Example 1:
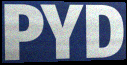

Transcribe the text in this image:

PYD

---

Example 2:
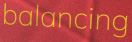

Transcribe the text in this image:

balancing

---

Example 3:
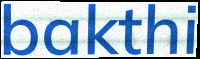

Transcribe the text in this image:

bakthi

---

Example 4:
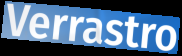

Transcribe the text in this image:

Verrastro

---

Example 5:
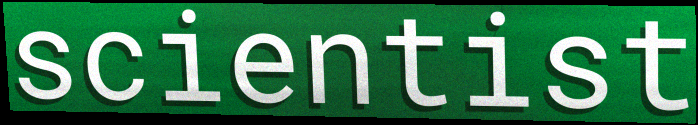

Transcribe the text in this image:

scientist